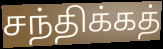
சந்திக்கத்